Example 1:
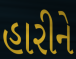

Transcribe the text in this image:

હારીને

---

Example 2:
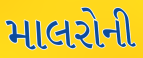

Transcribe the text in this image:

માલરોની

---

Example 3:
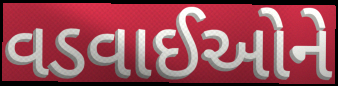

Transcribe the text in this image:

વડવાઈઓને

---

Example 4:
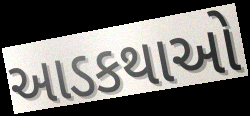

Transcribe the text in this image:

આડકથાઓ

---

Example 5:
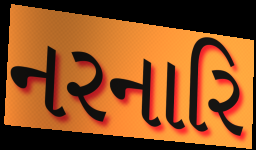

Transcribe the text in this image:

નરનારિ